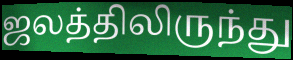
ஜலத்திலிருந்து